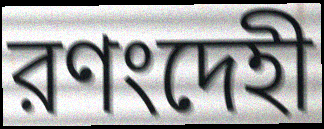
রণংদেহী